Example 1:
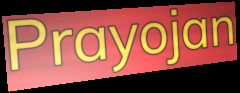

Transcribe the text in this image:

Prayojan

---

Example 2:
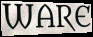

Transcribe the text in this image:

WARE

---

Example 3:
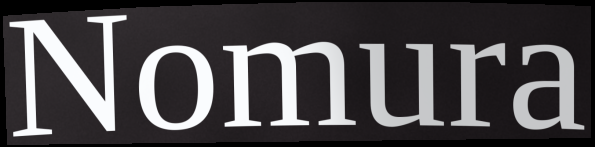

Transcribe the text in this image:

Nomura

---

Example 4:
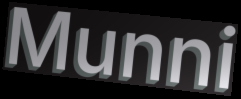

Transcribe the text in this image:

Munni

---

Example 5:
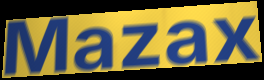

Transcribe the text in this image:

Mazax